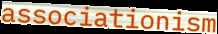
associationism